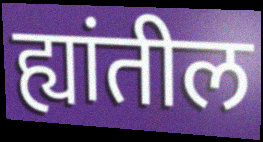
ह्यांतील